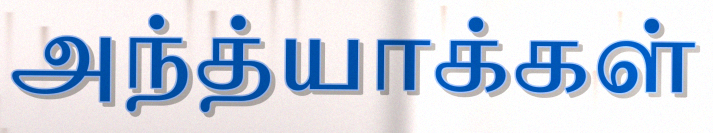
அந்த்யாக்கள்